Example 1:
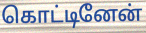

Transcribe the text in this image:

கொட்டினேன்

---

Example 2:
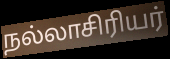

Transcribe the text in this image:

நல்லாசிரியர்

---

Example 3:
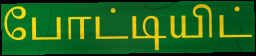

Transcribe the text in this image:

போட்டியிட்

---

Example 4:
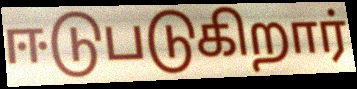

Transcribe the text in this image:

ஈடுபடுகிறார்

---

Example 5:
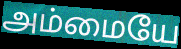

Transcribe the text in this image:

அம்மையே